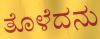
ತೊಳೆದನು